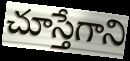
చూస్తేగాని